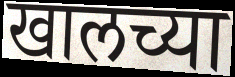
खालच्या